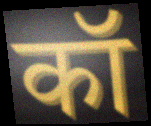
कॉ